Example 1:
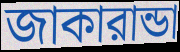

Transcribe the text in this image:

জাকারান্ডা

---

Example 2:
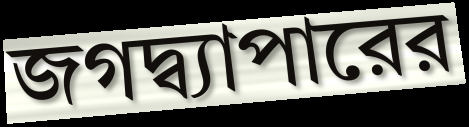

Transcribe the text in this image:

জগদ্ব্যাপারের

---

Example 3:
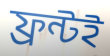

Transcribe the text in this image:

ফ্রন্টই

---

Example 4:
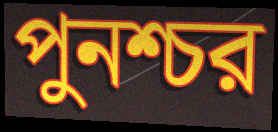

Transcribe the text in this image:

পুনশ্চর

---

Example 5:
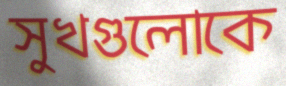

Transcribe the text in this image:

সুখগুলোকে